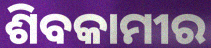
ଶିବକାମୀର